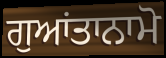
ਗੁਆਂਤਾਨਾਮੋ